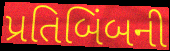
પ્રતિબિંબની